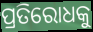
ପ୍ରତିରୋଧକୁ